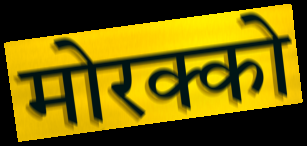
मोरक्को